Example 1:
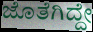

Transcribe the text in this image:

ಜೊತೆಗಿದ್ದೇ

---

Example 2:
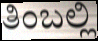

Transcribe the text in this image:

ತಿಂಬಲ್ಲಿ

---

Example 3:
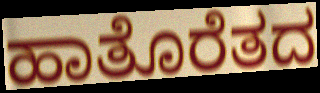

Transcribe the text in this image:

ಹಾತೊರೆತದ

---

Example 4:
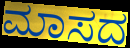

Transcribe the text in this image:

ಮಾಸದ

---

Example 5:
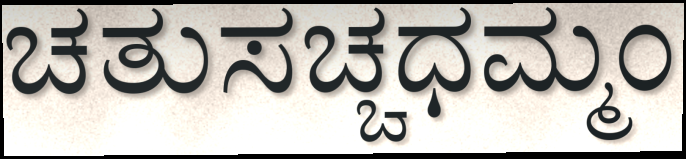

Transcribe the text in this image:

ಚತುಸಚ್ಚಧಮ್ಮಂ